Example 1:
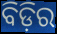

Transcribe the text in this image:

ବିଡ଼ିର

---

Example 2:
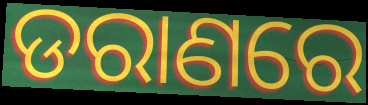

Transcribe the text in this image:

ଡରାଣରେ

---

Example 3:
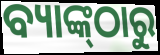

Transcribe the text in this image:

ବ୍ୟାଙ୍କ୍‌ଠାରୁ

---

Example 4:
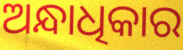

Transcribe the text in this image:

ଅନ୍ଧାଧିକାର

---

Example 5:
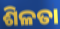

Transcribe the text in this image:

ଶିଳତା